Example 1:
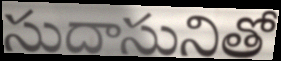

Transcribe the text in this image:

సుదాసునితో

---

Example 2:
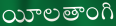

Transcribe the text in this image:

యీలతాంగి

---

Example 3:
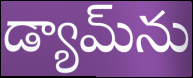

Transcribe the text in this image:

డ్యామ్‌ను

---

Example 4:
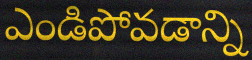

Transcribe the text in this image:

ఎండిపోవడాన్ని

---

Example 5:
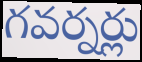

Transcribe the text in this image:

గవర్నర్లు